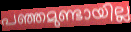
പഞ്ഞമുണ്ടായില്ല